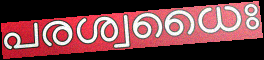
പരശ്വധൈഃ